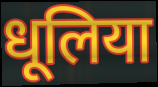
धूलिया